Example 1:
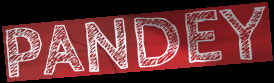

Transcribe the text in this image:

PANDEY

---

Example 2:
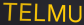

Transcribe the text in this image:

TELMU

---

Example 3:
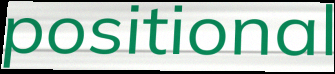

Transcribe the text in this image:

positional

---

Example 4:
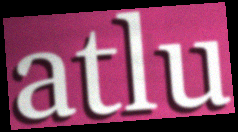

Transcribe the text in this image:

atlu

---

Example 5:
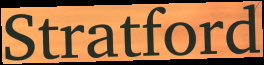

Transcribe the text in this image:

Stratford